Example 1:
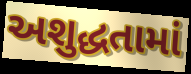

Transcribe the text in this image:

અશુદ્ધતામાં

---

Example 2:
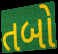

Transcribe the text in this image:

તબો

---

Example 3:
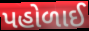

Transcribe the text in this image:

પહોળાઈ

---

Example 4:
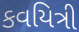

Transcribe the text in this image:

કવયિત્રી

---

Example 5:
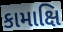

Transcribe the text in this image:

કામાક્ષિ